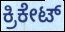
ಕ್ರಿಕೇಟ್